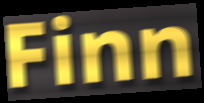
Finn